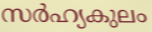
സർഹ്യകുലം